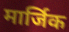
मार्जिक